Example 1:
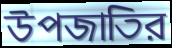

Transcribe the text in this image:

উপজাতির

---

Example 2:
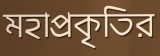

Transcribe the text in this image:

মহাপ্রকৃতির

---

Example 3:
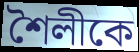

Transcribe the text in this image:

শৈলীকে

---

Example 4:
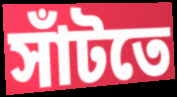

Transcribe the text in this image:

সাঁটতে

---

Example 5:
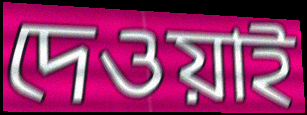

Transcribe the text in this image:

দেওয়াই